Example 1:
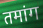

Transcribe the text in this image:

तमांग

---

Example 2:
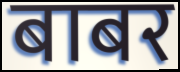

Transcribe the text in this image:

बाबर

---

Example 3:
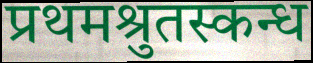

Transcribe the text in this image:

प्रथमश्रुतस्कन्ध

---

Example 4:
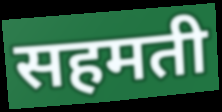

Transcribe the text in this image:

सहमती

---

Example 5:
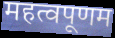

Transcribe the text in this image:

महत्वपूणम